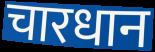
चारधान